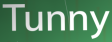
Tunny